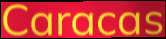
Caracas